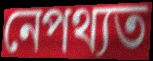
নেপথ্যত